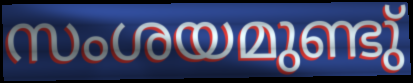
സംശയമുണ്ടു്